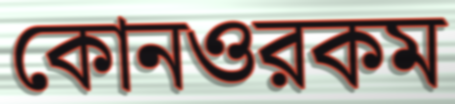
কোনওরকম